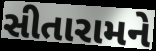
સીતારામને